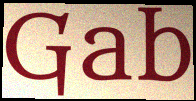
Gab